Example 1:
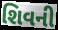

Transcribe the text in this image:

શિવની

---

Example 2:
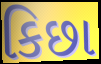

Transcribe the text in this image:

કિછા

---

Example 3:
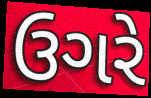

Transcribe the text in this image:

ઉગરે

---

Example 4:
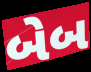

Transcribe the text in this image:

બેબ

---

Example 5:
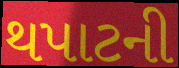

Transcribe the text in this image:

થપાટની